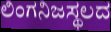
ಲಿಂಗನಿಜಸ್ಥಲದ